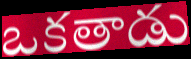
ఒకతాడు